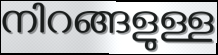
നിറങ്ങളുള്ള